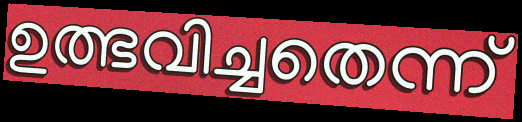
ഉത്ഭവിച്ചതെന്ന്